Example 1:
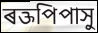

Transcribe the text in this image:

ৰক্তপিপাসু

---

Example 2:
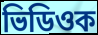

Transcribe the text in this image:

ভিডিওক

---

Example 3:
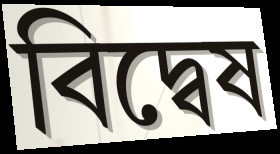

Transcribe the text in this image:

বিদ্বেষ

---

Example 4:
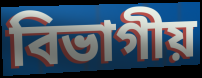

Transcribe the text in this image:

বিভাগীয়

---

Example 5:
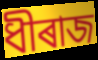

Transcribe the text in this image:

ধীৰাজ